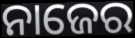
ନାଜେର